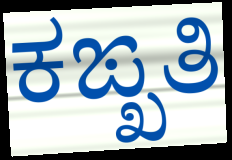
ಕಙ್ಖತಿ